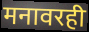
मनावरही